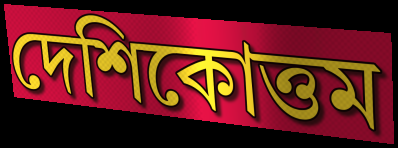
দেশিকোত্তম